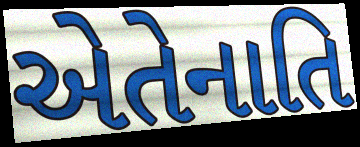
એતેનાતિ